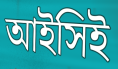
আইসিই